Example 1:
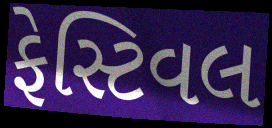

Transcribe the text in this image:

ફેસ્ટિવલ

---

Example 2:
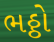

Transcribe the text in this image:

ભઠ્ઠો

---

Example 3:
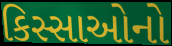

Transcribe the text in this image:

કિસ્સાઓનો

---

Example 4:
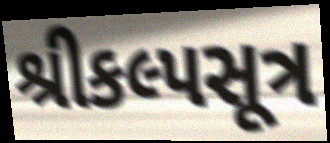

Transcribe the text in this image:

શ્રીકલ્પસૂત્ર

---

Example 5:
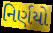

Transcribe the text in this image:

નિર્ણયો